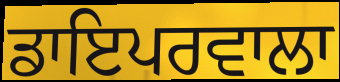
ਡਾਇਪਰਵਾਲਾ